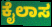
ಕೈಲಾಸ